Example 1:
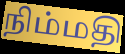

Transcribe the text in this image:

நிம்மதி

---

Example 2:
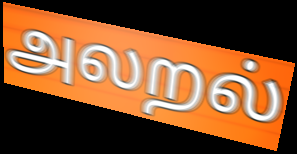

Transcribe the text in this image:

அலறல்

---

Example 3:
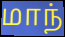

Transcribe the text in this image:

மாந்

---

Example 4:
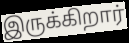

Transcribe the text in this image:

இருக்கிறார்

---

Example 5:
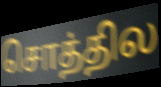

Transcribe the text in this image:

சொத்தில